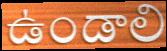
ఉండాలి